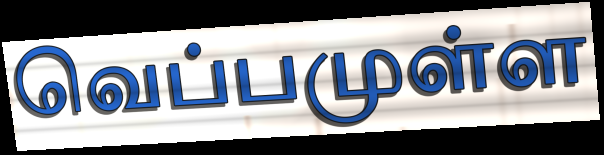
வெப்பமுள்ள